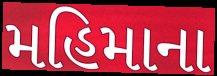
મહિમાના